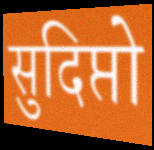
सुदिप्तो